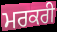
ਮਰਕਰੀ